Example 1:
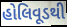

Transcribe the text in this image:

હોલિવૂડથી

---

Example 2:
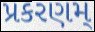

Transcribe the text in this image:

પ્રકરણમ્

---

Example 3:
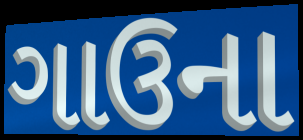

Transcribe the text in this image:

ગાઉના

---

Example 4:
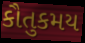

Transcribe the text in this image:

કૌતુકમય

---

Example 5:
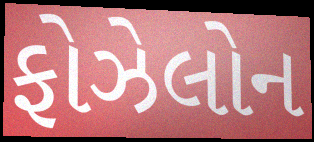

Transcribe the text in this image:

ફોઝેલોન